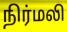
நிர்மலி